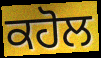
ਕਹੋਲ